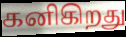
கனிகிறது